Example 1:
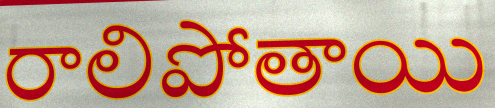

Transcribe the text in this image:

రాలిపోతాయి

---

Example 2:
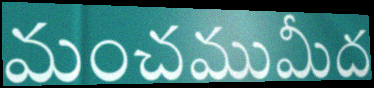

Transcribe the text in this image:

మంచముమీద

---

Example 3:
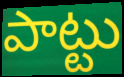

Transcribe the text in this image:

పాట్టు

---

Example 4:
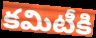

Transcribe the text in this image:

కమిటీకి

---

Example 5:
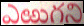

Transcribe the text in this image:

ఎఱుగని